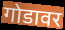
गोडावर